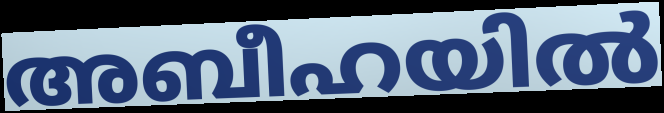
അബീഹയിൽ